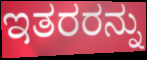
ಇತರರನ್ನು